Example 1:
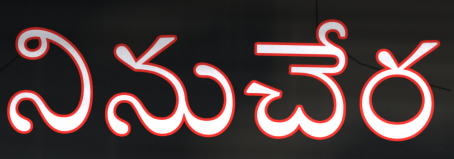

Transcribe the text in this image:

నినుచేర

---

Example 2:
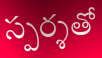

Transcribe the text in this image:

స్పర్శతో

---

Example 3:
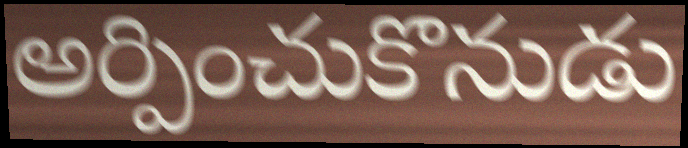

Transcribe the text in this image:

అర్పించుకొనుడు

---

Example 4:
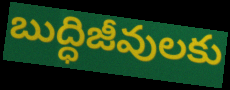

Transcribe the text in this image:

బుద్ధిజీవులకు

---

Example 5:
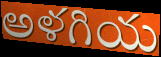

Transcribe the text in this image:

అళగియ